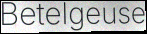
Betelgeuse